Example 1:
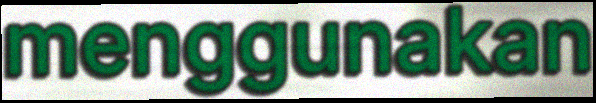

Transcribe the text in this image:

menggunakan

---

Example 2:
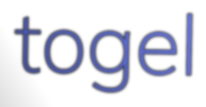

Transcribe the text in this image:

togel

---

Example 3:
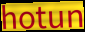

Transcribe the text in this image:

hotun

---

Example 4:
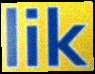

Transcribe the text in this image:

lik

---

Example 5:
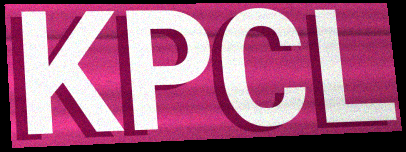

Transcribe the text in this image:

KPCL